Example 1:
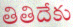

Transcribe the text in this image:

తితిదేకు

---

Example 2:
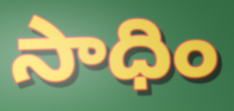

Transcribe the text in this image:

సాధిం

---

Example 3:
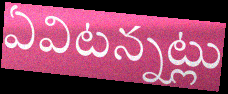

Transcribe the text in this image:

ఏవిటన్నట్లు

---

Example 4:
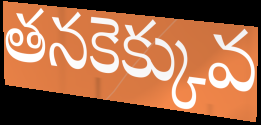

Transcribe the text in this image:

తనకెక్కువ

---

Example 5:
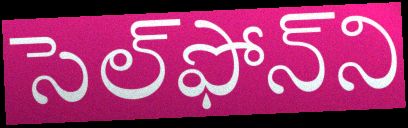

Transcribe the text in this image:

సెల్‌ఫోన్‌ని